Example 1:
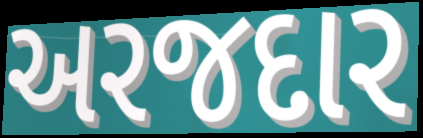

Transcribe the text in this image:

અરજદાર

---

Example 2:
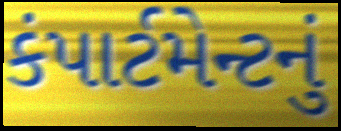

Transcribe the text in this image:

કંપાર્ટમેન્ટનું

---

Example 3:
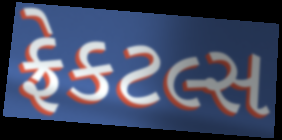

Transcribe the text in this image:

ફ્રેકટલ્સ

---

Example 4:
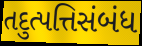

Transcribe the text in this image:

તદુત્પત્તિસંબંધ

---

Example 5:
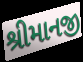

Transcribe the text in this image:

શ્રીમાનજી